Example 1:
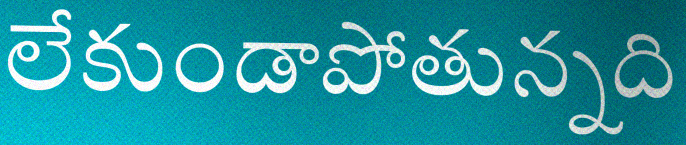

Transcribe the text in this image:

లేకుండాపోతున్నది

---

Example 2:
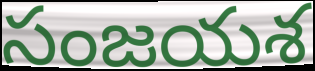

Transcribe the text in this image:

సంజయశ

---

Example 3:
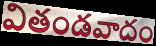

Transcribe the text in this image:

వితండవాదం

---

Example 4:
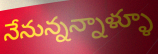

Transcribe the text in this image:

నేనున్నన్నాళ్ళూ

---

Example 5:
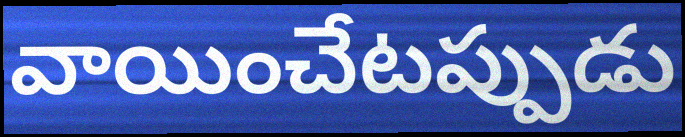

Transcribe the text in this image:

వాయించేటప్పుడు